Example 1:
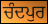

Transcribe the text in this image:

ਚੰਦਪੁਰ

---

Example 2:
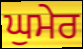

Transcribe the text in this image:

ਘੁਮੇਰ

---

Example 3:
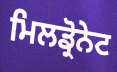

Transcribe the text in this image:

ਮਿਲਡ੍ਰੋਨੇਟ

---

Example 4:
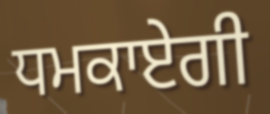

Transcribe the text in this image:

ਧਮਕਾਏਗੀ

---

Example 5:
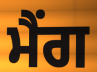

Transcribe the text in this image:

ਮੈਂਗ